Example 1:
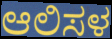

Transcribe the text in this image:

ಆಲಿಸಳ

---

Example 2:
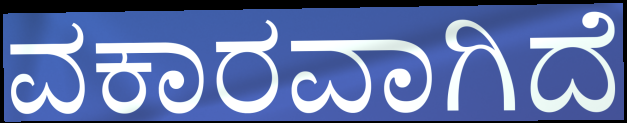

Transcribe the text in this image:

ವಕಾರವಾಗಿದೆ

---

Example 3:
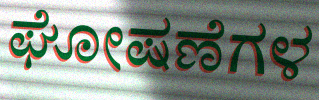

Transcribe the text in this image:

ಘೋಷಣೆಗಳ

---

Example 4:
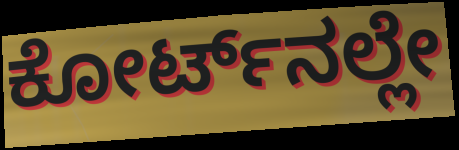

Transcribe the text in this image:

ಕೋರ್ಟ್‌ನಲ್ಲೇ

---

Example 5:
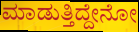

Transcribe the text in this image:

ಮಾಡುತ್ತಿದ್ದೇನೋ